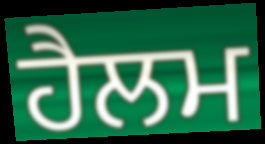
ਹੈਲਮ